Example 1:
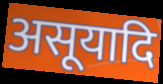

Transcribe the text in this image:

असूयादि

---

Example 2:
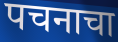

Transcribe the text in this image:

पचनाचा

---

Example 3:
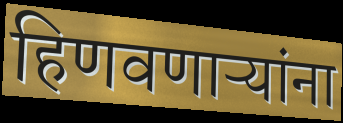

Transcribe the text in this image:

हिणवणाऱ्यांना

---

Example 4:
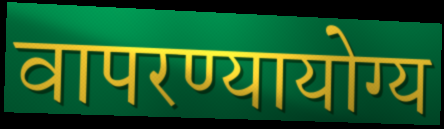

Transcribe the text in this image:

वापरण्यायोग्य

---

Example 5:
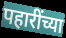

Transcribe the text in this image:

पहारींच्या